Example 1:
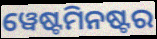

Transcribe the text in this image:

ୱେଷ୍ଟମିନଷ୍ଟର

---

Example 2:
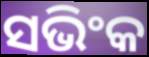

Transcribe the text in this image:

ସଭିଂକ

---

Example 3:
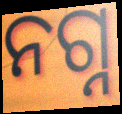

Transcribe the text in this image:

ନଗ୍ନ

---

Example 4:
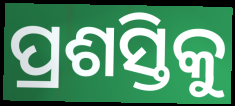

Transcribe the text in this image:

ପ୍ରଶସ୍ତିକୁ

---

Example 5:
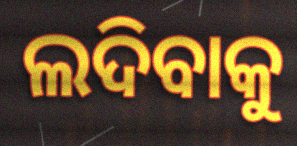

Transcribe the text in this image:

ଲଦିବାକୁ